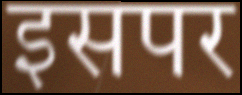
इसपर